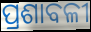
ପ୍ରଶାବଳୀ